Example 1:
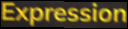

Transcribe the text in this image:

Expression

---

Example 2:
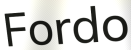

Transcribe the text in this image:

Fordo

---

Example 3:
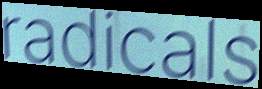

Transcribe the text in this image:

radicals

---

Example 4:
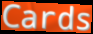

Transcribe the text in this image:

Cards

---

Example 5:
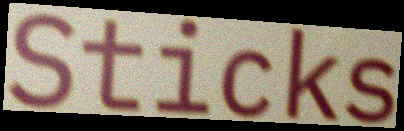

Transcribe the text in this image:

Sticks